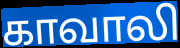
காவாலி